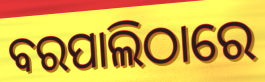
ବରପାଲିଠାରେ